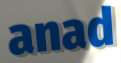
anad